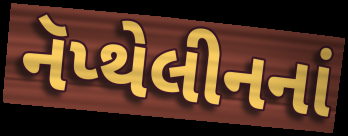
નૅપ્થેલીનનાં